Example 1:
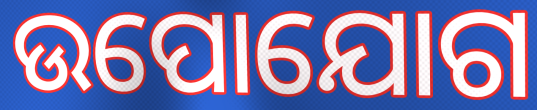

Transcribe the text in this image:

ଉପୋଯୋଗ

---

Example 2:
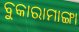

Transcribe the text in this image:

ବୁକାରାମାଙ୍ଗା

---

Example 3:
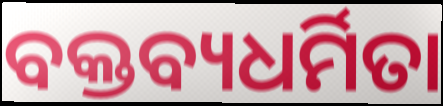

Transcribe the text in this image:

ବକ୍ତବ୍ୟଧର୍ମିତା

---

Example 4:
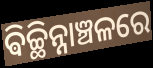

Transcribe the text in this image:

ଵିଚ୍ଛିନ୍ନାଞ୍ଚଳରେ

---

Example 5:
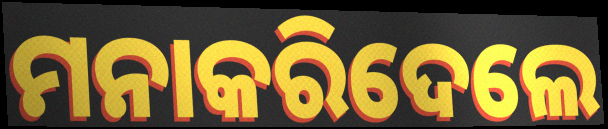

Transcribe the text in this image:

ମନାକରିଦେଲେ